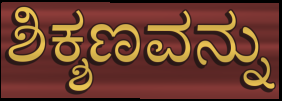
ಶಿಕ್ಶಣವನ್ನು